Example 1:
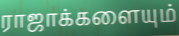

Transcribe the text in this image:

ராஜாக்களையும்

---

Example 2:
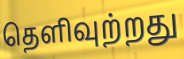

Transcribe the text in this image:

தெளிவுற்றது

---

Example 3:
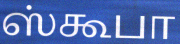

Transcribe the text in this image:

ஸ்கூபா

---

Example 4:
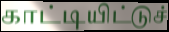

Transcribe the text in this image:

காட்டியிட்டுச்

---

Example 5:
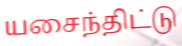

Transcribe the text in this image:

யசைந்திட்டு